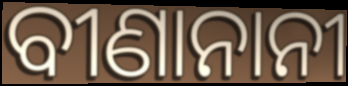
ବୀଣାନାନୀ